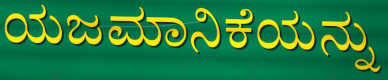
ಯಜಮಾನಿಕೆಯನ್ನು